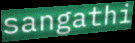
sangathi